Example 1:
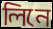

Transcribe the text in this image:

লিনে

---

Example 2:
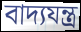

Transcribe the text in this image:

বাদ্যযন্ত্ৰ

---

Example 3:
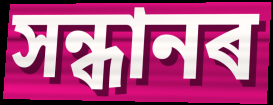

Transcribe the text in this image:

সন্ধানৰ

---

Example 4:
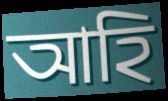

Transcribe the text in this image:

আহি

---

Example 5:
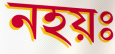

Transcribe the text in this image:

নহয়ঃ